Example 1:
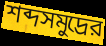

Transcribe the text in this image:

শব্দসমুদ্রের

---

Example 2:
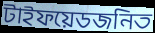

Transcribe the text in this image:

টাইফয়েডজনিত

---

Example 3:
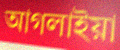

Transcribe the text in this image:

আগলাইয়া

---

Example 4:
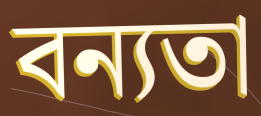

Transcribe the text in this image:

বন্যতা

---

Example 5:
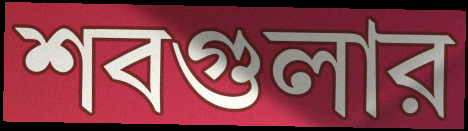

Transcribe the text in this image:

শবগুলার